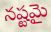
నష్టమై